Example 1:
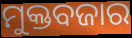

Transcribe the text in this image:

ମୁକ୍ତବଜାର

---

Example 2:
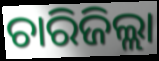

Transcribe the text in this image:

ଚାରିଜିଲ୍ଲା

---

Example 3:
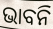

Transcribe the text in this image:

ଭାବନି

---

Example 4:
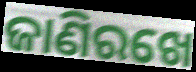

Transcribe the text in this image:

ଜାଣିରଖେ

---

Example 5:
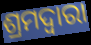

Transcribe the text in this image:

ଶ୍ରମଦ୍ଵାରା